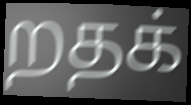
றதக்